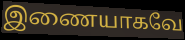
இணையாகவே